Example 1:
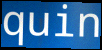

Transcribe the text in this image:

quin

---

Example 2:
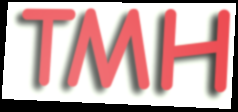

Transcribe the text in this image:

TMH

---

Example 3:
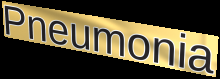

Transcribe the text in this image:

Pneumonia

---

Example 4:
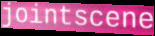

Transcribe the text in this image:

jointscene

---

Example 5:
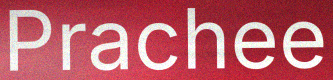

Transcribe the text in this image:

Prachee